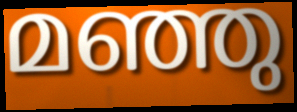
മഞ്ഞു